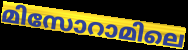
മിസോറാമിലെ